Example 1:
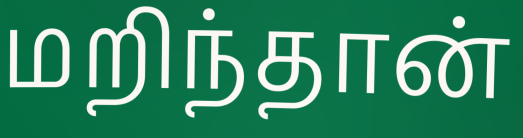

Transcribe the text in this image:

மறிந்தான்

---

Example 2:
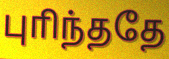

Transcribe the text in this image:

புரிந்ததே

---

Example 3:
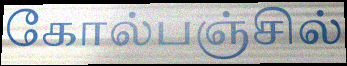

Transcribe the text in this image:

கோல்பஞ்சில்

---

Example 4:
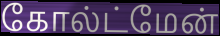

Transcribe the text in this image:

கோல்ட்மேன்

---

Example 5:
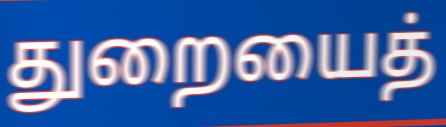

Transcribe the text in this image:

துறையைத்